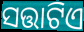
ସତ୍ତାଟିଏ